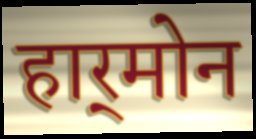
हार्मोन